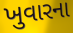
ખુવારના